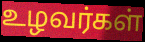
உழவர்கள்